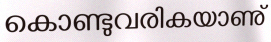
കൊണ്ടുവരികയാണു്